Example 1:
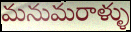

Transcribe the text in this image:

మనుమరాళ్ళు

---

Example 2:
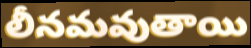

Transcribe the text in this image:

లీనమవుతాయి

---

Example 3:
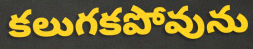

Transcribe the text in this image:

కలుగకపోవును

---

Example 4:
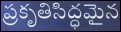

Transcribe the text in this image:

ప్రకృతిసిద్ధమైన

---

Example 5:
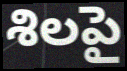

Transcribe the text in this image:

శిలపై